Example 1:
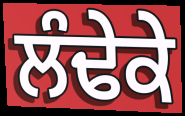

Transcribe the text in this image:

ਲੰਢੇਕੇ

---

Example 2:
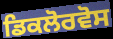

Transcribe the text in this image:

ਡਿਕਲੋਰਵੋਸ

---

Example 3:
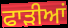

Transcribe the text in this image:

ਫਾੜੀਆਂ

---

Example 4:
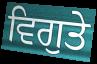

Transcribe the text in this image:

ਵਿਗੁਤੇ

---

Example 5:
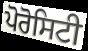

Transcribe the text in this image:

ਪੋਰੋਸਿਟੀ